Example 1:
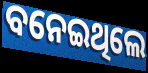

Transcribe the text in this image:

ବନେଇଥିଲେ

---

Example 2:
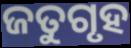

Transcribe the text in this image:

ଜତୁଗୃହ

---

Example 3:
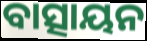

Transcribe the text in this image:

ବାତ୍ସାୟନ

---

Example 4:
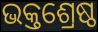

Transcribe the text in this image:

ଭକ୍ତଶ୍ରେଷ୍ଠ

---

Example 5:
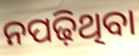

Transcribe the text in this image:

ନପଢ଼ିଥିବା